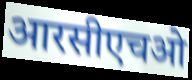
आरसीएचओ